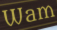
Wam